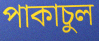
পাকাচুল